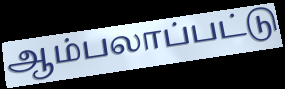
ஆம்பலாப்பட்டு